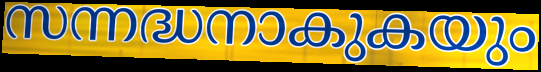
സന്നദ്ധനാകുകയും